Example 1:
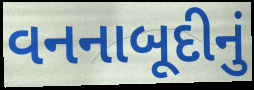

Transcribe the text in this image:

વનનાબૂદીનું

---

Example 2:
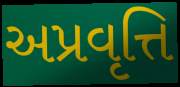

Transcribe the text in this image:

અપ્રવૃત્તિ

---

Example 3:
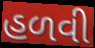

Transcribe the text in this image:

હળવી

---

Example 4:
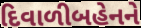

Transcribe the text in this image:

દિવાળીબહેનને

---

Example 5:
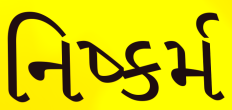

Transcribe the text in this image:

નિષ્કર્મ